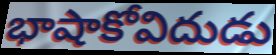
భాషాకోవిదుడు